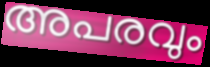
അപരവും